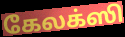
கேலக்ஸி